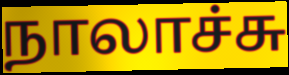
நாலாச்சு